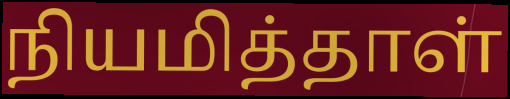
நியமித்தாள்